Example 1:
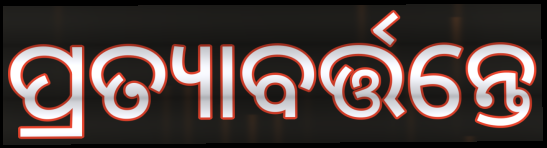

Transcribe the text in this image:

ପ୍ରତ୍ୟାବର୍ତ୍ତନ୍ତେ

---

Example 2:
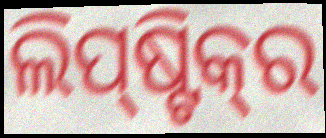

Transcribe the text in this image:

ଲିପ୍‌ଷ୍ଟିକ୍‌ର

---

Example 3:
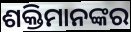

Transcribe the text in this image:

ଶକ୍ତିମାନଙ୍କର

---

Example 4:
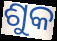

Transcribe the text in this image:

ଶୁକ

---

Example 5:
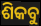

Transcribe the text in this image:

ଶିକବୁ